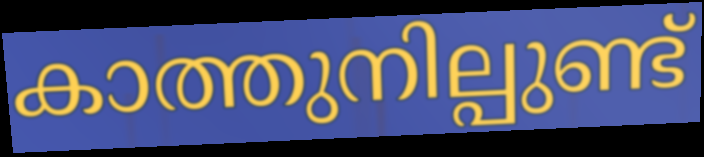
കാത്തുനില്പുണ്ട്